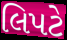
લિપટે